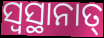
ସ୍ଵସ୍ଥାନାତ୍